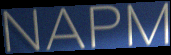
NAPM